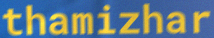
thamizhar